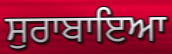
ਸੁਰਾਬਾਇਆ